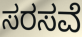
ಸರಸವೆ